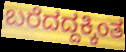
ಬರೆದದ್ದಕ್ಕಿಂತ